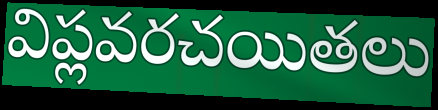
విప్లవరచయితలు